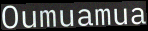
Oumuamua